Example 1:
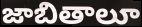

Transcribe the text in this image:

జాబితాలూ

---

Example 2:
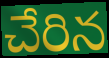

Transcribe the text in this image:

చేరిన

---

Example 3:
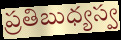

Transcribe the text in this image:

ప్రతిబుధ్యస్వ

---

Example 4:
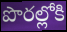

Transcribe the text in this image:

పొరల్లోకి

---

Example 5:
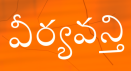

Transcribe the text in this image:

వీర్యవన్తి